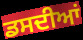
ਡਸਦੀਆਂ